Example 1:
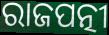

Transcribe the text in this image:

ରାଜପତ୍ନୀ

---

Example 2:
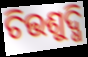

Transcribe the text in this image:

ଚିତ୍ତଶୁଦ୍ଧି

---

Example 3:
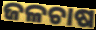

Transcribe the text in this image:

ଜଳଚାଷ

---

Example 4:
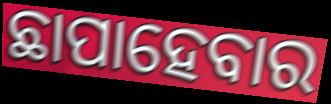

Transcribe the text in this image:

ଛାପାହେବାର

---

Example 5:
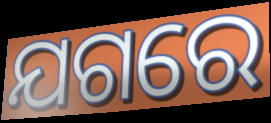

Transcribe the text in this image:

ଯଗରେ